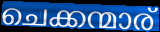
ചെക്കന്മാര്